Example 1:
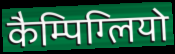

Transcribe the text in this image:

कैम्पिग्लियो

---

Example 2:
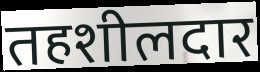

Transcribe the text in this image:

तहशीलदार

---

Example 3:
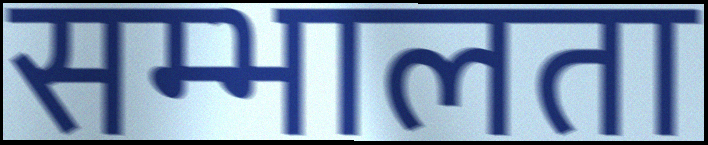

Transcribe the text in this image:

सम्भालता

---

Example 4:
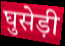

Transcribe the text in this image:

घुसेड़ी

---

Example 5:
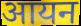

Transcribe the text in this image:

आयन